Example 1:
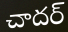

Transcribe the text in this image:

చాదర్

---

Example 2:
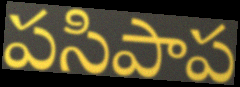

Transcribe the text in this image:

పసిపాప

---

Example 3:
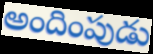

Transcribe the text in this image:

అందింపుడు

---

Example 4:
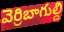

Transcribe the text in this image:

వెర్రిబాగుల్ది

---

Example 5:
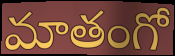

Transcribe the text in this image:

మాతంగో